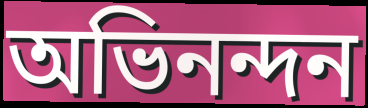
অভিনন্দন